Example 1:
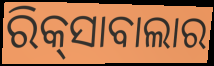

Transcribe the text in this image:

ରିକ୍‌ସାବାଲାର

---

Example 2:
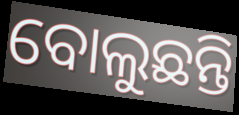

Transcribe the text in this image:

ବୋଲୁଛନ୍ତି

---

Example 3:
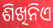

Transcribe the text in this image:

ଶିଖିନିଏ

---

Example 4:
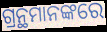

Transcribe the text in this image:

ଗ୍ରନ୍ଥମାନଙ୍କରେ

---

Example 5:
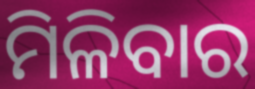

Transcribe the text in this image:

ମିଳିବାର